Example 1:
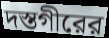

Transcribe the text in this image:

দস্তগীরের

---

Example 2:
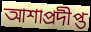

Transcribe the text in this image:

আশাপ্রদীপ্ত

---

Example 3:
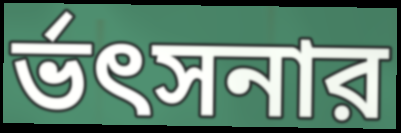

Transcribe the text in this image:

র্ভৎসনার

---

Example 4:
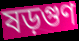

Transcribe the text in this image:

ষড়গুণ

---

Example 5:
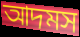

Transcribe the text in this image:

আদমস